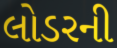
લોડરની